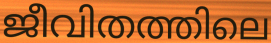
ജീവിതത്തിലെ